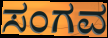
ಸಂಗವ